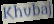
Khubaj